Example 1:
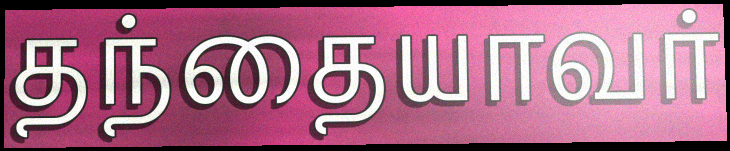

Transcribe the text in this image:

தந்தையாவர்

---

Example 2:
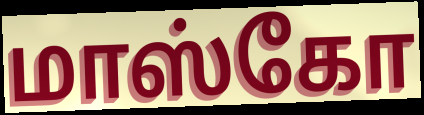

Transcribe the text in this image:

மாஸ்கோ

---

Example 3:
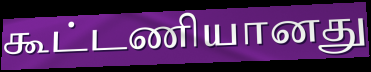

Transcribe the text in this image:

கூட்டணியானது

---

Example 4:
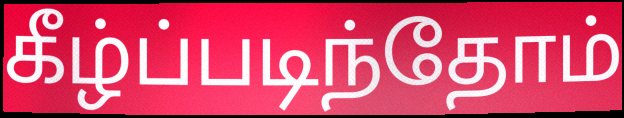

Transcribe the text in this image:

கீழ்ப்படிந்தோம்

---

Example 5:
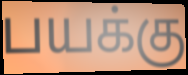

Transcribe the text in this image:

பயக்கு